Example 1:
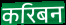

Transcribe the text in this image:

करिबन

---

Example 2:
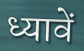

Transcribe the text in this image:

ध्यावें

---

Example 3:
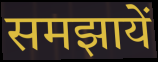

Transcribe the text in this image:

समझायें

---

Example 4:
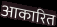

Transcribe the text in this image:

आकारित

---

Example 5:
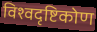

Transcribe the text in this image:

विश्वदृष्टिकोण